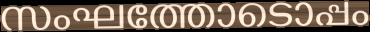
സംഘത്തോടൊപ്പം